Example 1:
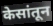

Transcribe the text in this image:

केसांतून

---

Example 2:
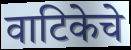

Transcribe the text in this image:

वाटिकेचे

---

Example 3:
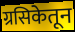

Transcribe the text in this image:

ग्रसिकेतून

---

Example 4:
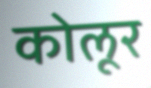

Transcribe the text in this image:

कोलूर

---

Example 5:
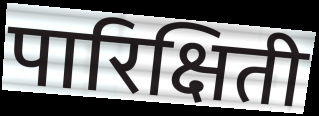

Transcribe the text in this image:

पारिक्षिती